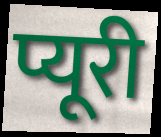
प्यूरी